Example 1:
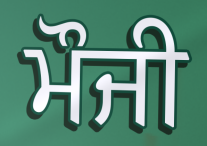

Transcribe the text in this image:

ਮੌਜੀ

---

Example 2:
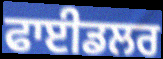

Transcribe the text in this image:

ਫਾਈਡਲਰ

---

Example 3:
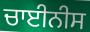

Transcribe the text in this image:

ਚਾਈਨੀਸ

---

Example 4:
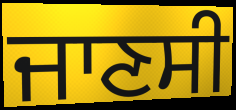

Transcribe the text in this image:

ਜਾਣਸੀ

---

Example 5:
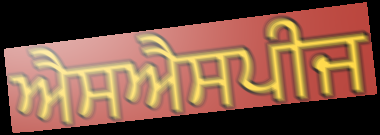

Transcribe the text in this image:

ਐਸਐਸਪੀਜ